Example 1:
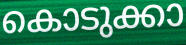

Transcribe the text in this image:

കൊടുക്കാ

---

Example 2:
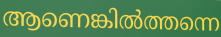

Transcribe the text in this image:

ആണെങ്കിൽത്തന്നെ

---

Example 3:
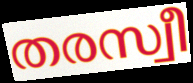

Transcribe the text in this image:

തരസ്വീ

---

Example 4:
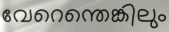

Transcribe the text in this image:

വേറെന്തെങ്കിലും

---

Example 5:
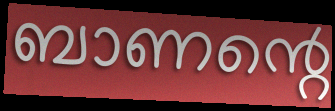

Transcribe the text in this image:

ബാണന്റെ